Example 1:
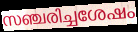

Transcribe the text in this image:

സഞ്ചരിച്ചശേഷം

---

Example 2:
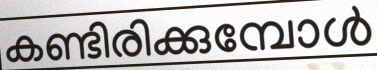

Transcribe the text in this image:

കണ്ടിരിക്കുമ്പോൾ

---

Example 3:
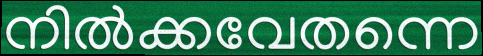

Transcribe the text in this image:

നിൽക്കവേതന്നെ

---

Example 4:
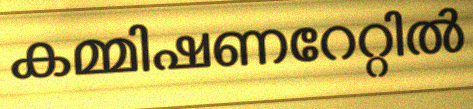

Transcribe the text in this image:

കമ്മിഷണറേറ്റിൽ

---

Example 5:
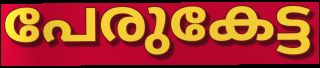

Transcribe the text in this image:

പേരുകേട്ട